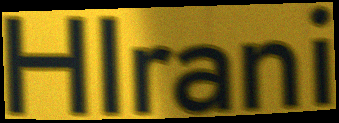
HIrani